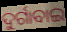
ଦୁର୍ଗାବାଇ